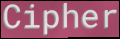
Cipher